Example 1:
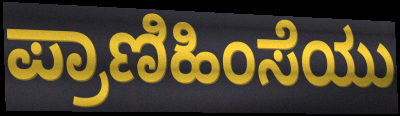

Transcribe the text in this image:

ಪ್ರಾಣಿಹಿಂಸೆಯು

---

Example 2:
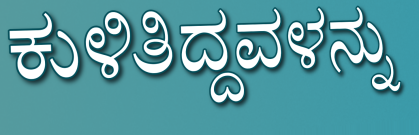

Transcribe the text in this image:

ಕುಳಿತಿದ್ದವಳನ್ನು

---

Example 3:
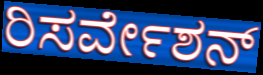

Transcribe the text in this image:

ರಿಸರ್ವೇಶನ್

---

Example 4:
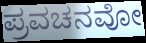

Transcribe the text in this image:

ಪ್ರವಚನವೋ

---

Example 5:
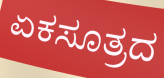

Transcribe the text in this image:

ಏಕಸೂತ್ರದ